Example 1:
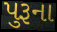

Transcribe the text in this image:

પુરૂના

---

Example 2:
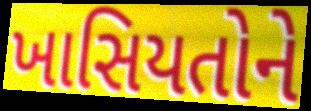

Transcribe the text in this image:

ખાસિયતોને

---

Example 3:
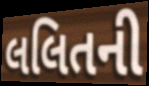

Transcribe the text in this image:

લલિતની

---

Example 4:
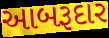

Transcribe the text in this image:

આબરૂદાર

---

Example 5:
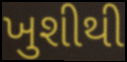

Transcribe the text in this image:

ખુશીથી